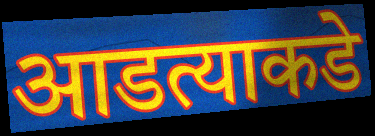
आडत्याकडे